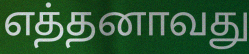
எத்தனாவது